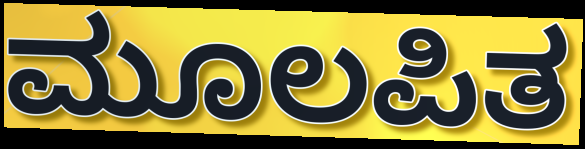
ಮೂಲಪಿತ